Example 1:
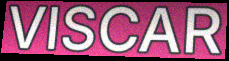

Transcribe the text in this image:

VISCAR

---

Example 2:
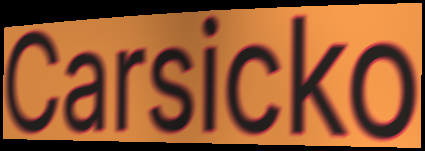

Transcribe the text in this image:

Carsicko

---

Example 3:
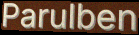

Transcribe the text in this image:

Parulben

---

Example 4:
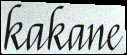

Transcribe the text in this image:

kakane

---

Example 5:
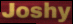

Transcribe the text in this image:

Joshy